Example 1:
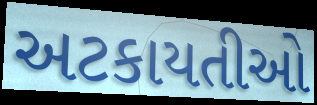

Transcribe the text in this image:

અટકાયતીઓ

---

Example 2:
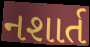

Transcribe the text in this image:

નશાર્ત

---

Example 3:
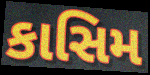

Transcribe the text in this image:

કાસિમ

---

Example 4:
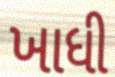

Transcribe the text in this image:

ખાધી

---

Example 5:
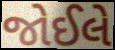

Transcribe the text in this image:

જોઈલે